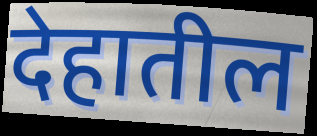
देहातील